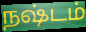
நஷ்டம்